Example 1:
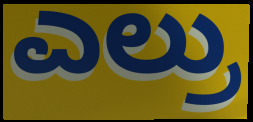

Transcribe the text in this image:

ಎಲ್ರು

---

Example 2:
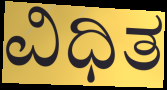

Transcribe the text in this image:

ವಿಧಿತ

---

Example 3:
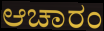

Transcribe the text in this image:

ಆಚಾರಂ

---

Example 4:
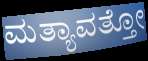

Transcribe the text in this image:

ಮತ್ಯಾವತ್ತೋ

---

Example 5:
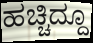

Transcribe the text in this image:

ಹಚ್ಚಿದ್ದೂ